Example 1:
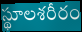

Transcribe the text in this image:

స్థూలశరీరం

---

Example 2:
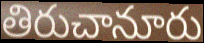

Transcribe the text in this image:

తిరుచానూరు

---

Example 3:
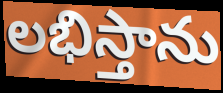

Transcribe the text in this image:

లభిస్తాను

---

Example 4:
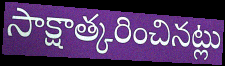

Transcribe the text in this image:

సాక్షాత్కరించినట్లు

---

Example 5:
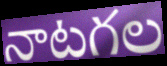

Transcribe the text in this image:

నాటగల